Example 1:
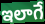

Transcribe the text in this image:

ఇలాగే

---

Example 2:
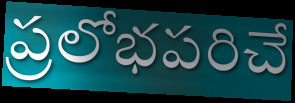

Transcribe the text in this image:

ప్రలోభపరిచే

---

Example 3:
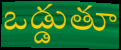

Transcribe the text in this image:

ఒడ్డుతూ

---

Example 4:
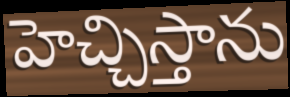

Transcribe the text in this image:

హెచ్చిస్తాను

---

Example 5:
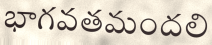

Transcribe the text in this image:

భాగవతమందలి